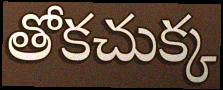
తోకచుక్క